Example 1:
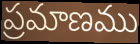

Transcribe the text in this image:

ప్రమాణము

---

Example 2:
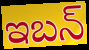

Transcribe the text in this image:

ఇబన్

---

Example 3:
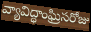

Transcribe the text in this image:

వ్యావిద్ధాంఘ్రిసరోజు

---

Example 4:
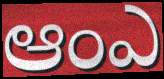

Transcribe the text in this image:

ఆంఎ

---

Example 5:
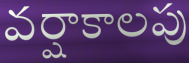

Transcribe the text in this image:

వర్షాకాలపు